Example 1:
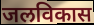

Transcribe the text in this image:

जलविकास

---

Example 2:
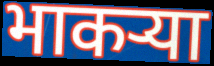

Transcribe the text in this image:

भाकऱ्या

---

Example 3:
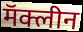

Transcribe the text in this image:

मॅक्लीन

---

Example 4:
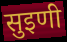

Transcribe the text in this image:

सुइणी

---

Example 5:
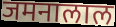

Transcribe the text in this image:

जमनालाल